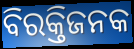
ବିରକ୍ତିଜନକ